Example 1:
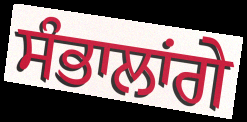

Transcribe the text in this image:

ਸੰਭਾਲਾਂਗੇ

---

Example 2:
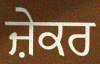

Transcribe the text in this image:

ਜ਼ੇਕਰ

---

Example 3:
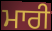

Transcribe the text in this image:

ਮਾਰੀ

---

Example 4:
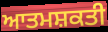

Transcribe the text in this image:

ਆਤਮਸ਼ਕਤੀ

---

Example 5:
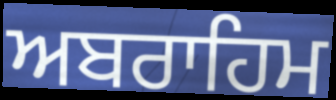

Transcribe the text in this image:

ਅਬਰਾਹਿਮ